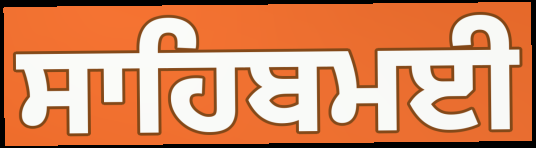
ਸਾਹਿਬਮਈ